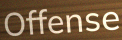
Offense